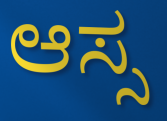
ಆಸ್ಸ